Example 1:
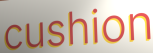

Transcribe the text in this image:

cushion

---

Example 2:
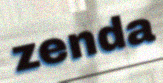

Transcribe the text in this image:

zenda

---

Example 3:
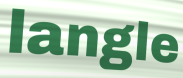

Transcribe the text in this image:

langle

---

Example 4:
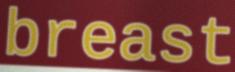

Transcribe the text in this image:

breast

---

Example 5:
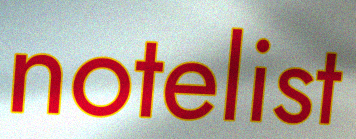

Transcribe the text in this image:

notelist